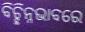
ବିଚ୍ଛିନ୍ନଭାବରେ